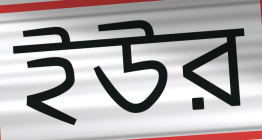
ইউর